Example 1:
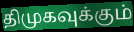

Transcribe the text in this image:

திமுகவுக்கும்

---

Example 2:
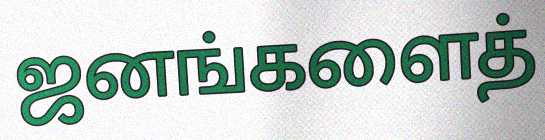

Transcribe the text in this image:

ஜனங்களைத்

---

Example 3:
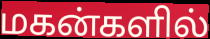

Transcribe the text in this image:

மகன்களில்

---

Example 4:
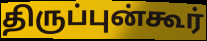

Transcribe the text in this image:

திருப்புன்கூர்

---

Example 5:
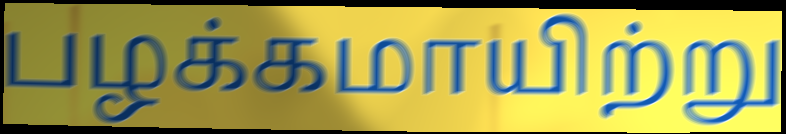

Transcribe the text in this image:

பழக்கமாயிற்று